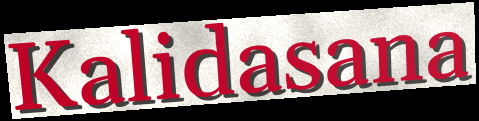
Kalidasana